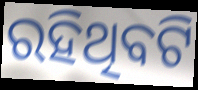
ରହିଥିବଟି